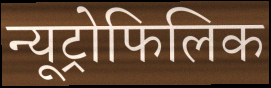
न्यूट्रोफिलिक